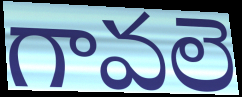
గావలె